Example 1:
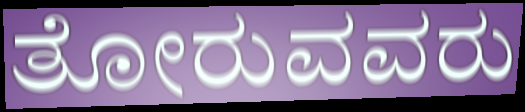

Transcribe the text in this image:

ತೋರುವವರು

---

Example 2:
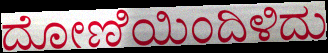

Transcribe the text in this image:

ದೋಣಿಯಿಂದಿಳಿದು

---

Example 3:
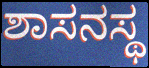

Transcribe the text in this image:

ಶಾಸನಸ್ಥ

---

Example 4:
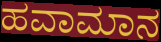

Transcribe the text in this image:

ಹವಾಮಾನ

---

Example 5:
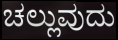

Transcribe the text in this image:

ಚಲ್ಲುವುದು